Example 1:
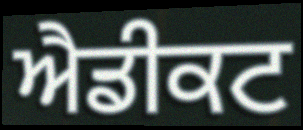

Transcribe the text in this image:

ਐਡੀਕਟ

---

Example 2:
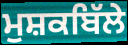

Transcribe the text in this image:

ਮੁਸ਼ਕਬਿੱਲੇ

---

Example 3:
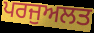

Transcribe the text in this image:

ਪਰਜੁਅਲਤ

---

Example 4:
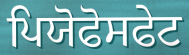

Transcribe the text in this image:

ਪਿਯੋਫੋਸਫੇਟ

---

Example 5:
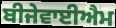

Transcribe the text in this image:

ਬੀਜੇਵਾਈਐਮ